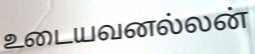
உடையவனல்லன்